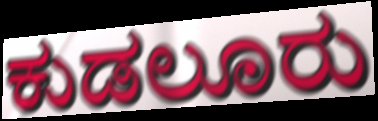
ಕುಡಲೂರು